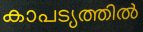
കാപട്യത്തിൽ